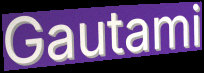
Gautami